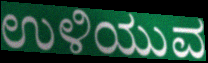
ಉಳಿಯುವ